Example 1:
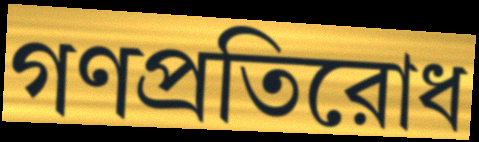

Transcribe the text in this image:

গণপ্রতিরোধ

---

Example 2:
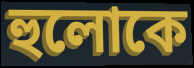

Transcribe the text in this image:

হুলোকে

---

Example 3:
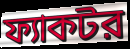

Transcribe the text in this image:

ফ্যাকটর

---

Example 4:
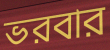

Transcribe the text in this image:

ভরবার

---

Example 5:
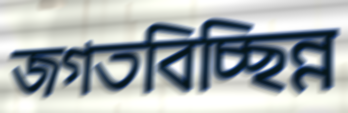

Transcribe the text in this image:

জগতবিচ্ছিন্ন